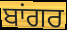
ਬਾਂਗਰ